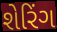
શેરિંગ